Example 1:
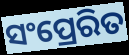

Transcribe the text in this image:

ସଂପ୍ରେରିତ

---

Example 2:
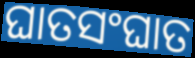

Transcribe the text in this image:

ଘାତସଂଘାତ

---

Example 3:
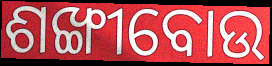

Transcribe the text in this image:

ଶଙ୍ଖୀବୋଉ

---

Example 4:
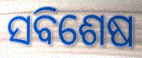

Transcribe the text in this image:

ସବିଶେଷ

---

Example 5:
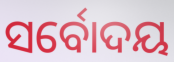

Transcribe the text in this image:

ସର୍ବୋଦୟ